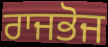
ਰਾਜਭੋਜ